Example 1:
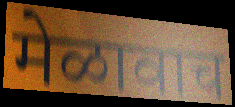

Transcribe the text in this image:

मेळावाच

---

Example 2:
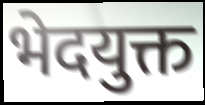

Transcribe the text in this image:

भेदयुक्त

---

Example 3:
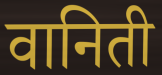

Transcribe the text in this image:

वानिती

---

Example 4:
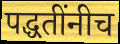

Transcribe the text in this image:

पद्धतींनीच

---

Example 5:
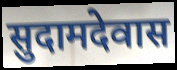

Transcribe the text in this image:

सुदामदेवास